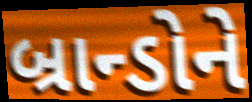
બ્રાન્ડોને